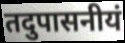
तदुपासनीयं